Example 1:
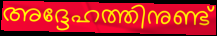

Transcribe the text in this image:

അദ്ദേഹത്തിനുണ്ട്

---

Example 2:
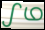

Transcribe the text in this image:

ഽഥ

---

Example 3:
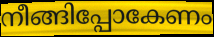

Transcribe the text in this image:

നീങ്ങിപ്പോകേണം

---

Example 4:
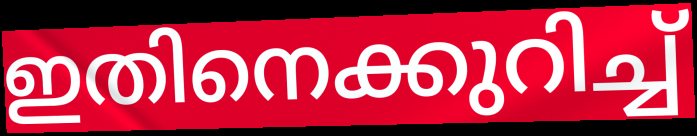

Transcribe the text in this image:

ഇതിനെക്കുറിച്ച്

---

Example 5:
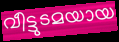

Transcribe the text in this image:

വീട്ടുടമയായ